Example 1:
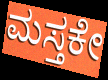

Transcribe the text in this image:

ಮಸ್ತಕೇ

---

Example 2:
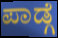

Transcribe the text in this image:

ಪಾಡ್ಗೆ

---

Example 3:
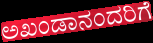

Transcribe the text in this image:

ಅಖಂಡಾನಂದರಿಗೆ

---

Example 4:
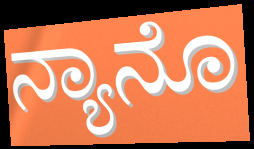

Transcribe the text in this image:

ನ್ಯಾನೊ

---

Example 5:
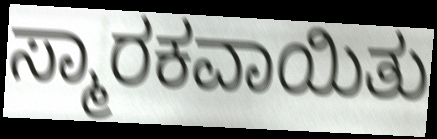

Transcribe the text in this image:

ಸ್ಮಾರಕವಾಯಿತು